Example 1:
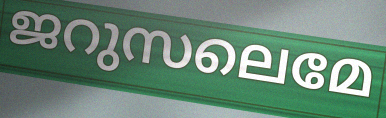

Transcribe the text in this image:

ജറുസലെമേ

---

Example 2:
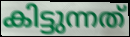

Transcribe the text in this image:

കിട്ടുന്നത്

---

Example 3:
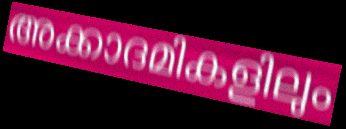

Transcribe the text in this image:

അക്കാദമികളിലും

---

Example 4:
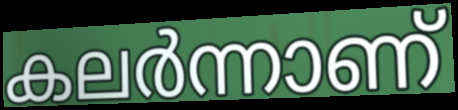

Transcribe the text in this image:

കലർന്നാണ്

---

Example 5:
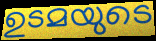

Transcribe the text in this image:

ഉടമയുടെ